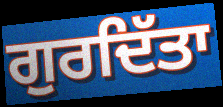
ਗੁਰਦਿੱਤਾ